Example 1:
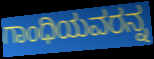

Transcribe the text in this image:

ಗಾಂಧಿಯವರನ್ನ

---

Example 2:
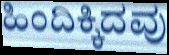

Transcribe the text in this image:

ಹಿಂದಿಕ್ಕಿದವು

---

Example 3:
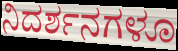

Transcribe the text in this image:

ನಿದರ್ಶನಗಳೂ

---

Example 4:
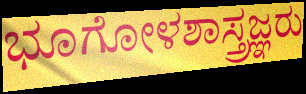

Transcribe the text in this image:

ಭೂಗೋಳಶಾಸ್ತ್ರಜ್ಞರು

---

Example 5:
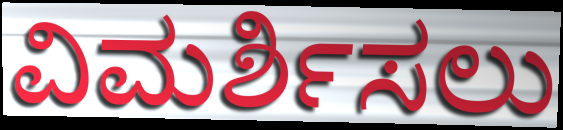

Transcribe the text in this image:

ವಿಮರ್ಶಿಸಲು